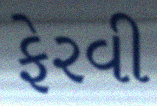
ફેરવી